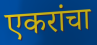
एकरांचा